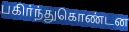
பகிர்ந்துகொண்டன